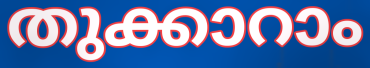
തുക്കാറാം